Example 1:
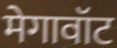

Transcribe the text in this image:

मेगावॉट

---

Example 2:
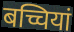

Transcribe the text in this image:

बच्चियां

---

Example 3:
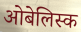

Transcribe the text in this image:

ओबेलिस्क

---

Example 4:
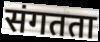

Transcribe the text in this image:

संगतता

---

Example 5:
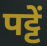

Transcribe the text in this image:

पट्टें